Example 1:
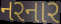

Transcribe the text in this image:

નરનાર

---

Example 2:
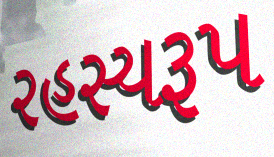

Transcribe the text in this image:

રહસ્યરૂપ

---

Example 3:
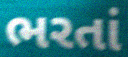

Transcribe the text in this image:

ભરતાં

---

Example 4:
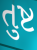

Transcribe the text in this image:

તુષ્ટ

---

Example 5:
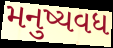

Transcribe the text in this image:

મનુષ્યવધ